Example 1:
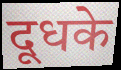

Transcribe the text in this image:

दूधके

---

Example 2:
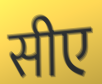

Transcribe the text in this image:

सीए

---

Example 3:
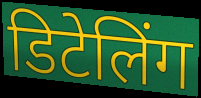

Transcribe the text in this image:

डिटेलिंग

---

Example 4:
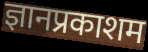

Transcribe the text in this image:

ज्ञानप्रकाशम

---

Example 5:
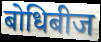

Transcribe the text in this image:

बोधिबीज